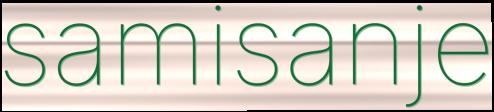
samisanje